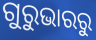
ଗୁରୁଭାରରୁ